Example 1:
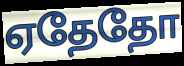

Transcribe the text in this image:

ஏதேதோ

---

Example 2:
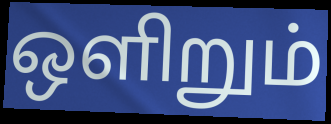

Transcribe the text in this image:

ஒளிறும்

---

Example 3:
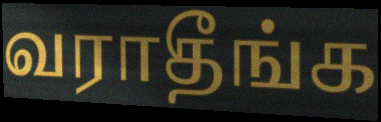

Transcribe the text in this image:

வராதீங்க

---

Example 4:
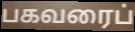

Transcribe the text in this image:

பகவரைப்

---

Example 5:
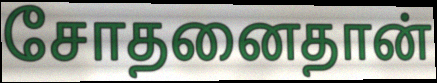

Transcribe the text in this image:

சோதனைதான்